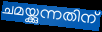
ചമയ്ക്കുന്നതിന്